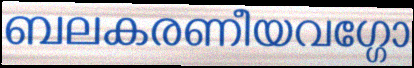
ബലകരണീയവഗ്ഗോ